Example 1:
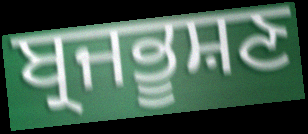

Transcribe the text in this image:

ਬ੍ਰਜਭੂਸ਼ਣ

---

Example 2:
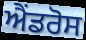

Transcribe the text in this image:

ਐਂਡਰੋਸ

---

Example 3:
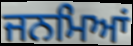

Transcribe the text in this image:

ਜਨਮਿਆਂ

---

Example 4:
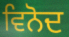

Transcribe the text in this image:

ਵਿਨੋਦ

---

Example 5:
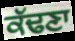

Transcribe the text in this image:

ਕੱਢਣਾ